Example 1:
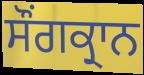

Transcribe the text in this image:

ਸੌਂਗਕ੍ਰਾਨ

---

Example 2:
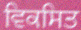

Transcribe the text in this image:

ਵਿਕਸਿਤ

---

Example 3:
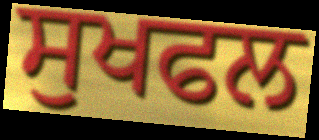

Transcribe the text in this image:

ਸੁਖਫਲ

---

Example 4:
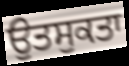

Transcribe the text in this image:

ਉਤਸੁਕਤਾ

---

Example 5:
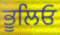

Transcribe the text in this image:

ਭੂਲਿਓ